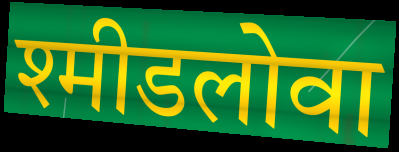
श्मीडलोवा